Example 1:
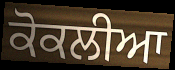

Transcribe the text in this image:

ਕੋਕਲੀਆ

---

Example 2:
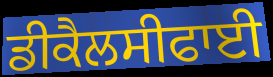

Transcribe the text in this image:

ਡੀਕੈਲਸੀਫਾਈ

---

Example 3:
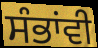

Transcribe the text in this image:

ਸੰਭਾਂਵੀ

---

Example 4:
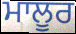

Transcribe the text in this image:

ਮਾਲੂਰ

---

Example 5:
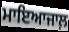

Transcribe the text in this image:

ਮਾਇਆਜਾਲ਼